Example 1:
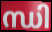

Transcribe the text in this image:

ന്ധി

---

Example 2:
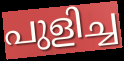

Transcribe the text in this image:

പുളിച്ച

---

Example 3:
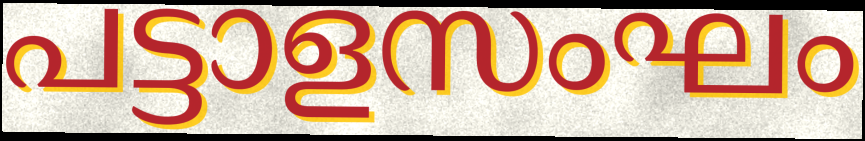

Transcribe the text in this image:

പട്ടാളസംഘം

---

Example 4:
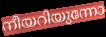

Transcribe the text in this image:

നീയറിയുന്നോ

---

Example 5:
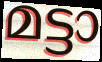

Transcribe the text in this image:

മട്ടാ